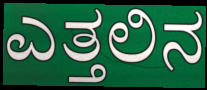
ಎತ್ತಲಿನ